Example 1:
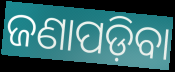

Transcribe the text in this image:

ଜଣାପଡ଼ିବା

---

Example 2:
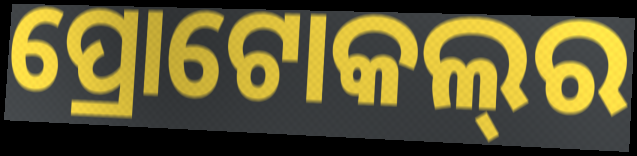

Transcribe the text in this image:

ପ୍ରୋଟୋକଲ୍‌ର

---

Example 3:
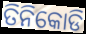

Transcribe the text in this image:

ତିନିକୋଡି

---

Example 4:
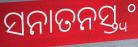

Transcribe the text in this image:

ସନାତନସ୍ତ୍ୱଂ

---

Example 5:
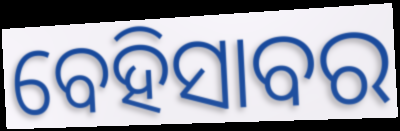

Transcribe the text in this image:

ବେହିସାବର